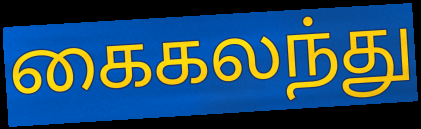
கைகலந்து